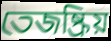
তেজষ্ক্রিয়